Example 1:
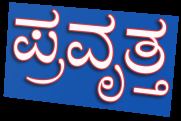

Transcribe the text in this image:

ಪ್ರವೃತ್ತ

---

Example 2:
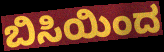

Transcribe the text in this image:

ಬಿಸಿಯಿಂದ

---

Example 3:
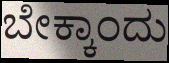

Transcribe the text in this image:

ಬೇಕ್ಕಾಂದು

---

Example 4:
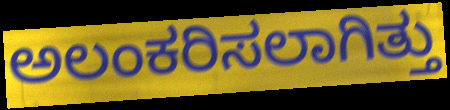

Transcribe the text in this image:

ಅಲಂಕರಿಸಲಾಗಿತ್ತು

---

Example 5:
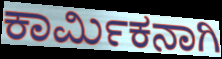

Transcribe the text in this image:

ಕಾರ್ಮಿಕನಾಗಿ